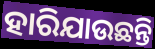
ହାରିଯାଉଛନ୍ତି